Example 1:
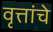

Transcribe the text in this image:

वृत्तांचे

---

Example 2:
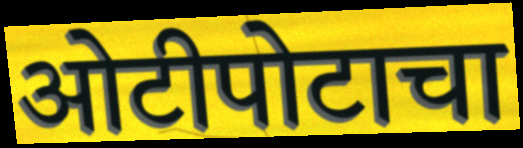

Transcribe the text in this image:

ओटीपोटाचा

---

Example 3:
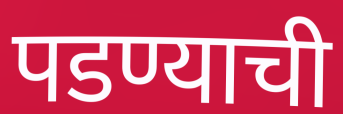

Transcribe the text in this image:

पडण्याची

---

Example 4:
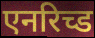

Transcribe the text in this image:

एनरिच्ड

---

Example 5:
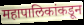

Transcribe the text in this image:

महापालिकांकडून